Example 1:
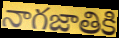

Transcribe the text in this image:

నాగజాతికి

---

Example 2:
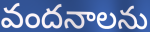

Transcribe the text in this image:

వందనాలను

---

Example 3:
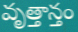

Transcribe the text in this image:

వృత్తాన్తం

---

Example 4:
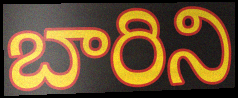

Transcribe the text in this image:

బారిని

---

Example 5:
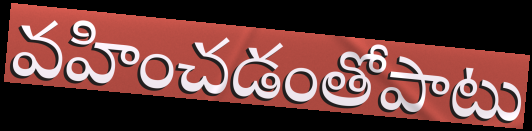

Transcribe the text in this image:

వహించడంతోపాటు